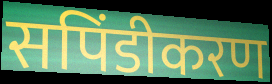
सपिंडीकरण